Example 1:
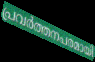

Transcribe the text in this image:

പ്രവർത്തനപരമായി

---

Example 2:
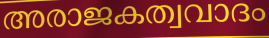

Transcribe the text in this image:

അരാജകത്വവാദം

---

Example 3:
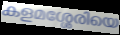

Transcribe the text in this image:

കളമശ്ശേരിയെ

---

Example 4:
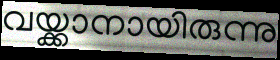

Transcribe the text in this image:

വയ്ക്കാനായിരുന്നു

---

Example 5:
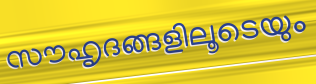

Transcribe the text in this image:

സൗഹൃദങ്ങളിലൂടെയും